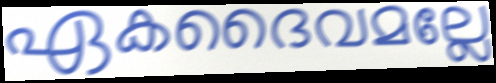
ഏകദൈവമല്ലേ